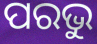
ପରଭୁ